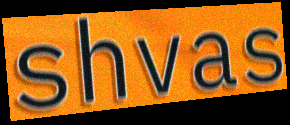
shvas